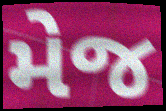
મેજ